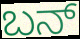
ಬನ್